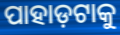
ପାହାଡ଼ଟାକୁ